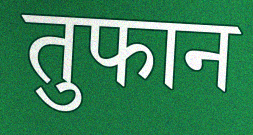
तुफान